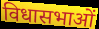
विधासभाओं